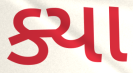
ક્યા